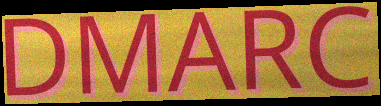
DMARC